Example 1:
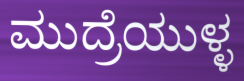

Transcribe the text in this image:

ಮುದ್ರೆಯುಳ್ಳ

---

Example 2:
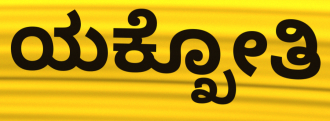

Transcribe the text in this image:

ಯಕ್ಖೋತಿ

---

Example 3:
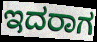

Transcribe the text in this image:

ಇದರಾಗ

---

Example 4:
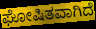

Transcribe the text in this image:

ಘೋಷಿತವಾಗಿದೆ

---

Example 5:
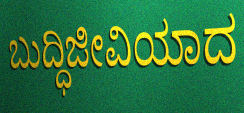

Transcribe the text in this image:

ಬುದ್ಧಿಜೀವಿಯಾದ